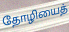
தோழியைத்